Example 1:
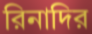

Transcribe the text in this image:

রিনাদির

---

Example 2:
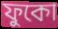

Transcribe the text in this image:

ফুকো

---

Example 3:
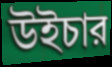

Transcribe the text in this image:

উইচার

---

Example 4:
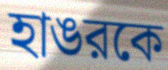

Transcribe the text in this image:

হাঙরকে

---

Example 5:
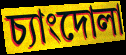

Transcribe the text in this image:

চ্যাংদোলা